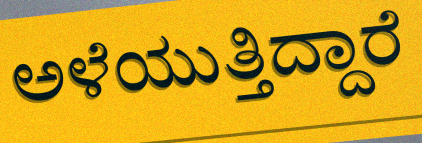
ಅಳೆಯುತ್ತಿದ್ದಾರೆ